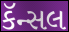
કૅન્સલ